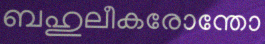
ബഹുലീകരോന്തോ